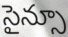
సైన్సూ